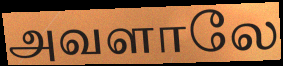
அவளாலே